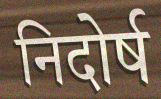
निदोर्ष